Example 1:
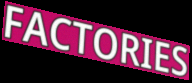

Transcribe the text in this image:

FACTORIES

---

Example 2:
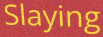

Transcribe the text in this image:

Slaying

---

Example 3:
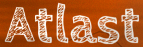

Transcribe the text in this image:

Atlast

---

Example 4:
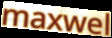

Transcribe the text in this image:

maxwel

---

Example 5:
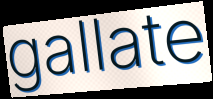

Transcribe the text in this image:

gallate